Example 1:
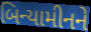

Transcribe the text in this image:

બિન્યામીનને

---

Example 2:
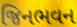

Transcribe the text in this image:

જિનભવન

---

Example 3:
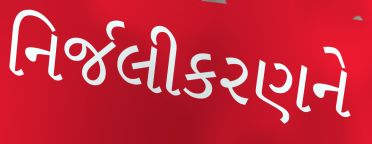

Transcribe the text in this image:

નિર્જલીકરણને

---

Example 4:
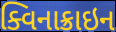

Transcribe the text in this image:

ક્વિનાક્રાઇન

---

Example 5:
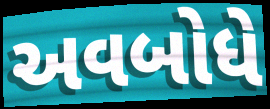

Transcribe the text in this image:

અવબોધે